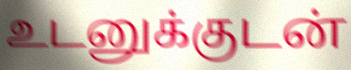
உடனுக்குடன்